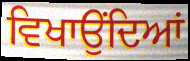
ਵਿਖਾਉਂਦਿਆਂ